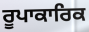
ਰੂਪਾਕਾਰਿਕ